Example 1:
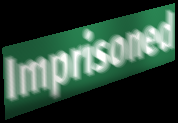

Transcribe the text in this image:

Imprisoned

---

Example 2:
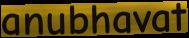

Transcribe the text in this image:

anubhavat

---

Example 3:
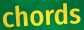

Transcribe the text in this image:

chords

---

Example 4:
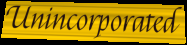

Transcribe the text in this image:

Unincorporated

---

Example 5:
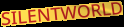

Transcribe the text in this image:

SILENTWORLD